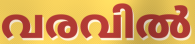
വരവിൽ